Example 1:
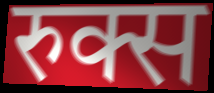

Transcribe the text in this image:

रुक्स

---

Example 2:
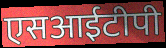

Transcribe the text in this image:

एसआईटीपी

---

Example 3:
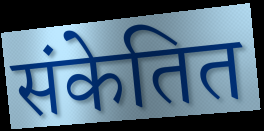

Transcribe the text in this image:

संकेतित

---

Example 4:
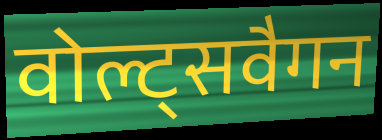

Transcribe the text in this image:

वोल्ट्सवैगन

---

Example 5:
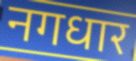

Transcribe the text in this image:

नगधार